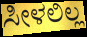
ಸೀಳಲಿಲ್ಲ